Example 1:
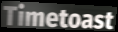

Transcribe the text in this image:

Timetoast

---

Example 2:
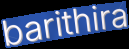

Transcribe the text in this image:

barithira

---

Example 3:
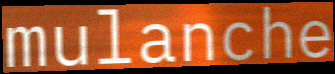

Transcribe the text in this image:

mulanche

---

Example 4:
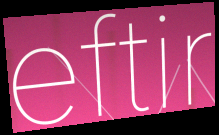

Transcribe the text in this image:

eftir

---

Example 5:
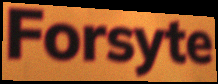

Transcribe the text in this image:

Forsyte